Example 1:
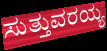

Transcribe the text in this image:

ಸುತ್ತುವರಯ್ಯ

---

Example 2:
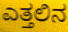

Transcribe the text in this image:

ಎತ್ತಲಿನ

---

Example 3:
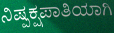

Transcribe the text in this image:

ನಿಷ್ಪಕ್ಷಪಾತಿಯಾಗಿ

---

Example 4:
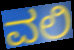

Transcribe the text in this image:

ವಲಿ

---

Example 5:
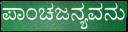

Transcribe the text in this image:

ಪಾಂಚಜನ್ಯವನು